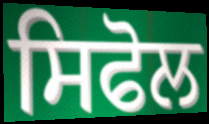
ਸਿਫੋਲ